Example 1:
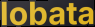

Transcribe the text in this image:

lobata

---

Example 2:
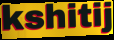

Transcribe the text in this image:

kshitij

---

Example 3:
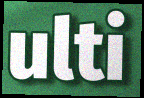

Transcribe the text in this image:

ulti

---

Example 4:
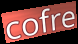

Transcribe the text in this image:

cofre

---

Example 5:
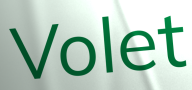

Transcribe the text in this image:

Volet